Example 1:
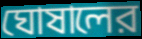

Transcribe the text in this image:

ঘোষালের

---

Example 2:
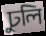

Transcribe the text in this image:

ঢুলি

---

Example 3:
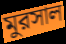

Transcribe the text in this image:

মুরসাল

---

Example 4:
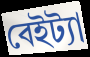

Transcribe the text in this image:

বেইট্যা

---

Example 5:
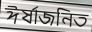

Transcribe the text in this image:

ঈর্ষাজনিত